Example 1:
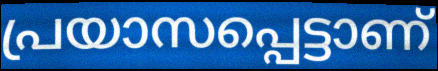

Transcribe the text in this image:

പ്രയാസപ്പെട്ടാണ്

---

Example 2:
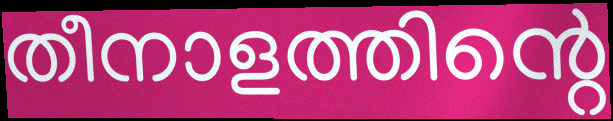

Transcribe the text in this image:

തീനാളത്തിന്റെ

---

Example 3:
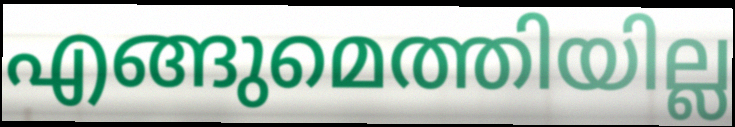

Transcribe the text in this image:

എങ്ങുമെത്തിയില്ല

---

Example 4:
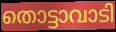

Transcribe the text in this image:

തൊട്ടാവാടി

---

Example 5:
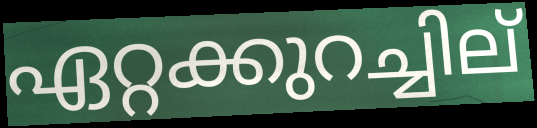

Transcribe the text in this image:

ഏറ്റക്കുറച്ചില്